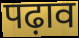
पढ़ाव